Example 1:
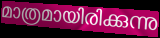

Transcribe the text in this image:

മാത്രമായിരിക്കുന്നു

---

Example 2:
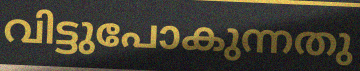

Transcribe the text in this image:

വിട്ടുപോകുന്നതു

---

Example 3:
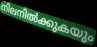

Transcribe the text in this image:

നിലനിൽക്കുകയും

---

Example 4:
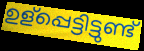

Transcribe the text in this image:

ഉള്പ്പെട്ടിട്ടുണ്ട്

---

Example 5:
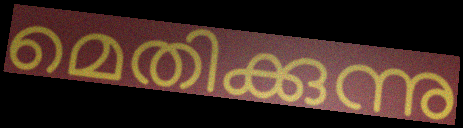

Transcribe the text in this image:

മെതിക്കുന്നു